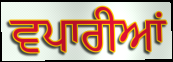
ਵਪਾਰੀਆਂ